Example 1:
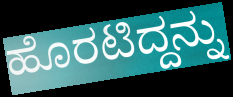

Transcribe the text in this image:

ಹೊರಟಿದ್ದನ್ನು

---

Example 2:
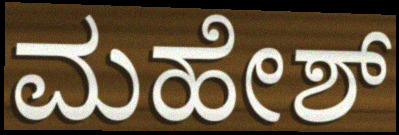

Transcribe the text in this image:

ಮಹೇಶ್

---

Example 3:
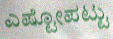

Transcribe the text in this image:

ಎಷ್ಟೋಪಟ್ಟು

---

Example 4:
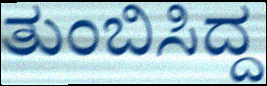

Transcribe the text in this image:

ತುಂಬಿಸಿದ್ದ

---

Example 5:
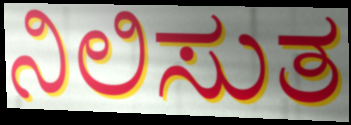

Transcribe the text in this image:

ನಿಲಿಸುತ